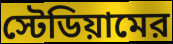
স্টেডিয়ামের